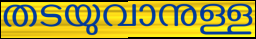
തടയുവാനുള്ള